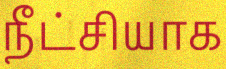
நீட்சியாக